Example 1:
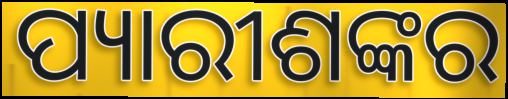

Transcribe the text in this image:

ପ୍ୟାରୀଶଙ୍କର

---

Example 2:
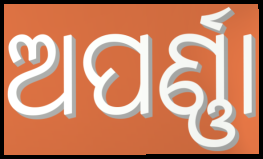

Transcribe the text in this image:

ଅପର୍ଣ୍ଣା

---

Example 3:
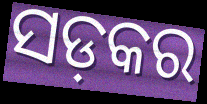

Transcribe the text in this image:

ସଡ଼କର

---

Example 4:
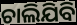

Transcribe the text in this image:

ଚାଲିଯିବି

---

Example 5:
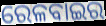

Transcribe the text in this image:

ରେଳବାଇର